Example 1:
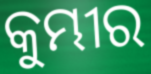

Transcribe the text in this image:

କୁମ୍ଭୀର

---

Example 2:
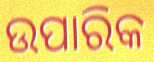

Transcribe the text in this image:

ଉପାରିକ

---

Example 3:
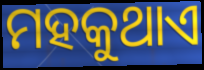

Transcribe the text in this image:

ମହକୁଥାଏ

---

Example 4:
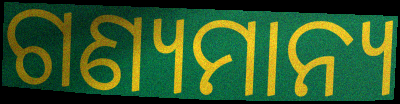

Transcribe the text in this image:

ଗଣ୍ୟମାନ୍ୟ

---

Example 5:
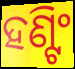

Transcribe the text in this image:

ହଣ୍ଟିଂ